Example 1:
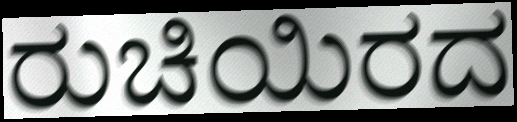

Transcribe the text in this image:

ರುಚಿಯಿರದ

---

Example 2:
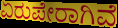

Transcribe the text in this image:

ಏರುಪೇರಾಗಿವೆ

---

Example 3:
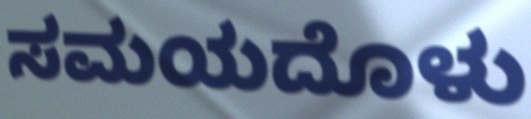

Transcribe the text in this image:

ಸಮಯದೊಳು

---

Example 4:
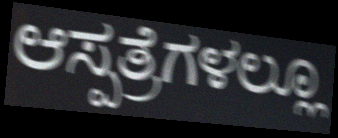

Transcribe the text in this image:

ಆಸ್ಪತ್ರೆಗಳಲ್ಲೂ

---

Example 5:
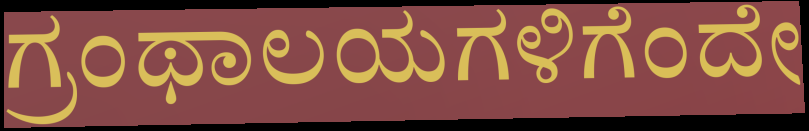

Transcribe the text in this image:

ಗ್ರಂಥಾಲಯಗಳಿಗೆಂದೇ